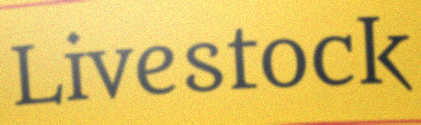
Livestock